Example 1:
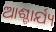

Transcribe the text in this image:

ଆଶ୍ଚାର୍ଯ୍ୟ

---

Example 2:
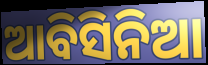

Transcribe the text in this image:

ଆବିସିନିଆ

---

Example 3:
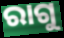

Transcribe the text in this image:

ରାଗୁ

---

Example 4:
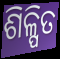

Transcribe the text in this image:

ଶିଳ୍ପିତ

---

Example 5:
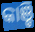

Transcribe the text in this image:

କାଞ୍ଚି